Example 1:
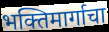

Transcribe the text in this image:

भक्तिमार्गाचा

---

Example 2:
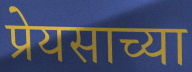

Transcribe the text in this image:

प्रेयसाच्या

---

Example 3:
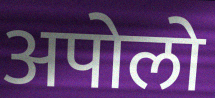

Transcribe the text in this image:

अपोलो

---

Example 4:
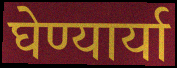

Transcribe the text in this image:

घेण्यार्या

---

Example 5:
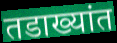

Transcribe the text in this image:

तडाख्यांत